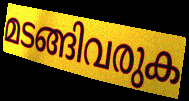
മടങ്ങിവരുക